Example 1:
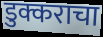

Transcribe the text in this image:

डुक्कराचा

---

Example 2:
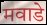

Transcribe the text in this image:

मवाडे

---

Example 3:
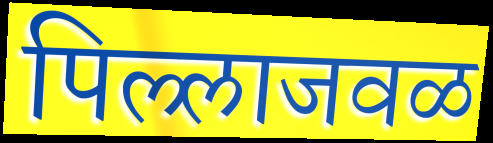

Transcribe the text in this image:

पिल्लाजवळ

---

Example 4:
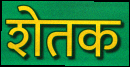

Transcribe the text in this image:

शेतक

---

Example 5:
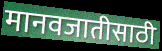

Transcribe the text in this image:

मानवजातीसाठी